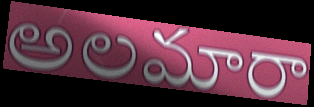
అలమారా